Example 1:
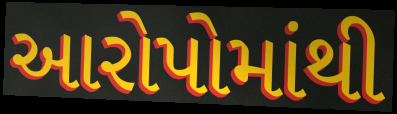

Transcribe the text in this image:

આરોપોમાંથી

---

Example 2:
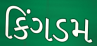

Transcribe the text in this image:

કિંગડમ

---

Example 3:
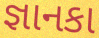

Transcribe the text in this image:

જ્ઞાનકા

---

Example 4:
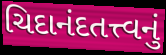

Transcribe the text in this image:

ચિદાનંદતત્ત્વનું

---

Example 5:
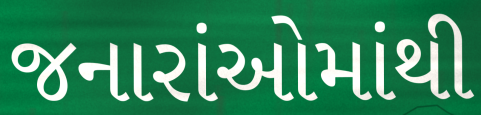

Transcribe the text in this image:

જનારાંઓમાંથી